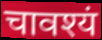
चावश्यं